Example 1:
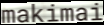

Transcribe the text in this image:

makimai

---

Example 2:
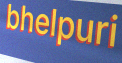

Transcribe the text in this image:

bhelpuri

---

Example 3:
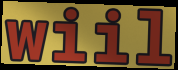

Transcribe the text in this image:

wiil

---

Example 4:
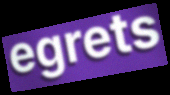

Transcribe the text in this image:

egrets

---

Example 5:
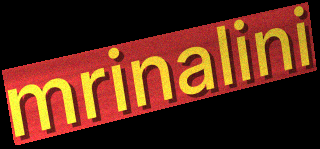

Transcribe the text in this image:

mrinalini